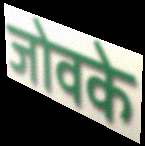
जोवके